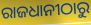
ରାଜଧାନୀଠାରୁ